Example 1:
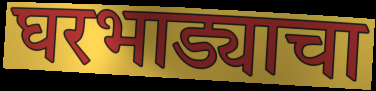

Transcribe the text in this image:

घरभाड्याचा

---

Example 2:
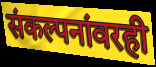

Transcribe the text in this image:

संकल्पनांवरही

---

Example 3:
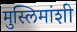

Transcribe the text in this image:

मुस्लिमांशी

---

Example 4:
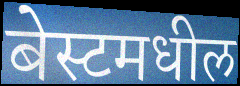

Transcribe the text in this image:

बेस्टमधील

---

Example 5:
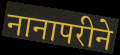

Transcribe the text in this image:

नानापरीने